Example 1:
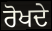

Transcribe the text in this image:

ਰੋਖਦੇ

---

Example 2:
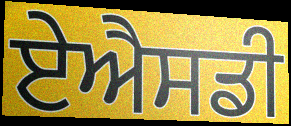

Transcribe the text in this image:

ਏਐਸਡੀ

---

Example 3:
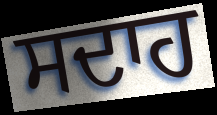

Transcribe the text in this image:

ਸਦਾਹ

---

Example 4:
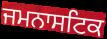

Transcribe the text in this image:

ਜਮਨਾਸਟਿਕ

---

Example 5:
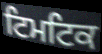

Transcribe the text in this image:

ਟਿਮਟਿਕ